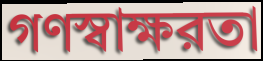
গণস্বাক্ষরতা